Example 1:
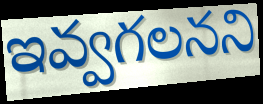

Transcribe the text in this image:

ఇవ్వగలనని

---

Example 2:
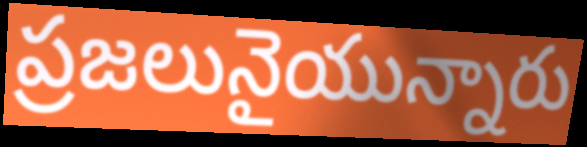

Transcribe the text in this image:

ప్రజలునైయున్నారు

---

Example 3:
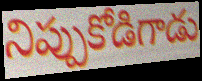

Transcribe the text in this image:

నిప్పుకోడిగాడు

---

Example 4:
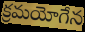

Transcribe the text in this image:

క్రమయోగేన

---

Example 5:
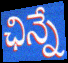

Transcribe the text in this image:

ఛిన్నే